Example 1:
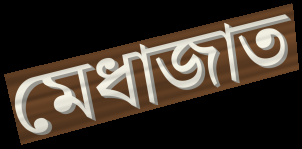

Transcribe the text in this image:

মেধাজাত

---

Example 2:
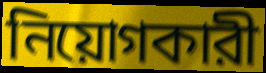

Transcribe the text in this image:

নিয়োগকারী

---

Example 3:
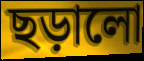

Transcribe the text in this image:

ছড়ালো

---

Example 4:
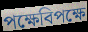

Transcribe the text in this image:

পক্ষেবিপক্ষে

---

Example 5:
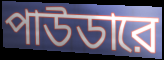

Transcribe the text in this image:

পাউডারে